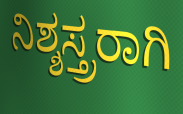
ನಿಶ್ಶಸ್ತ್ರರಾಗಿ